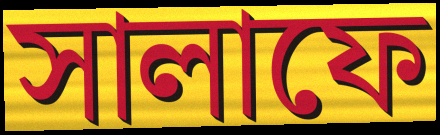
সালাফে